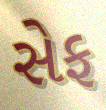
સેફ